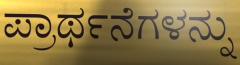
ಪ್ರಾರ್ಥನೆಗಳನ್ನು